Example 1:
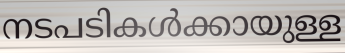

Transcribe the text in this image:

നടപടികൾക്കായുള്ള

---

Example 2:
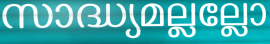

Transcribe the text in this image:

സാദ്ധ്യമല്ലല്ലോ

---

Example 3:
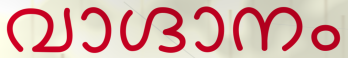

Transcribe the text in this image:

വാഗ്ദാനം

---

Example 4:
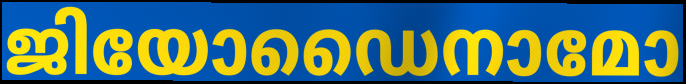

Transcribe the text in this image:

ജിയോഡൈനാമോ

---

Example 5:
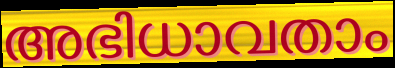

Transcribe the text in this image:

അഭിധാവതാം